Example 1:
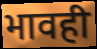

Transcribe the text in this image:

भावही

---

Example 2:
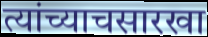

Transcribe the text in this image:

त्यांच्याचसारखा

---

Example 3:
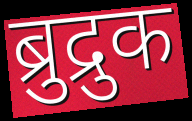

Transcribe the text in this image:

ब्रुद्रुक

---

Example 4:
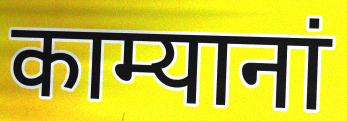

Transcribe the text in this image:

काम्यानां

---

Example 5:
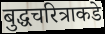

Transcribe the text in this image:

बुद्धचरित्राकडे